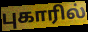
புகாரில்